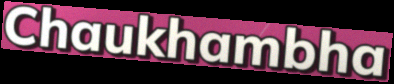
Chaukhambha